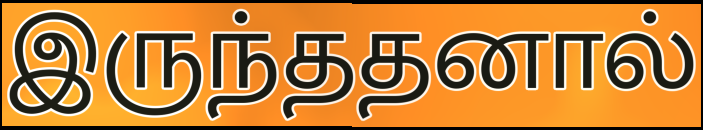
இருந்ததனால்